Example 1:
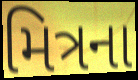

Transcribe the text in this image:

મિત્રના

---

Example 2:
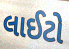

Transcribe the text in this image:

લાઈટો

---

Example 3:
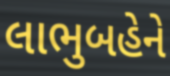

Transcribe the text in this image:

લાભુબહેને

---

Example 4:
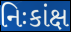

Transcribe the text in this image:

નિઃકાંક્ષ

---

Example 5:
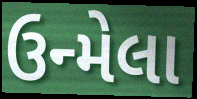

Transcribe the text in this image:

ઉન્મેલા